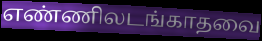
எண்ணிலடங்காதவை